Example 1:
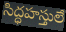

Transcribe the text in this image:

సిద్ధహస్తులే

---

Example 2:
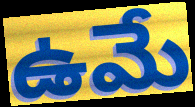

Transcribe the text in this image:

ఉమే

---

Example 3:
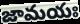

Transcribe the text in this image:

జామయః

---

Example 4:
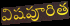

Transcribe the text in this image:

విషపూరిత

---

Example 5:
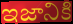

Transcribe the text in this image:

ఇజానికి